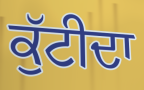
ਕੁੱਟੀਦਾ